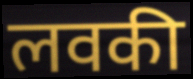
लवकी